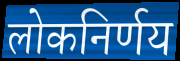
लोकनिर्णय